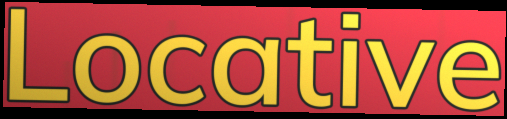
Locative